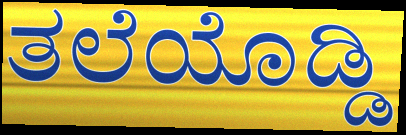
ತಲೆಯೊಡ್ಡಿ